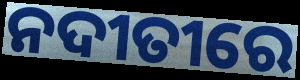
ନଦୀତୀରେ